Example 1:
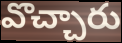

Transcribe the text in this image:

వొచ్చారు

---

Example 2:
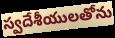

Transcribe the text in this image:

స్వదేశీయులతోను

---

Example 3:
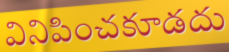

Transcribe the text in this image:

వినిపించకూడదు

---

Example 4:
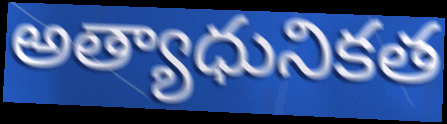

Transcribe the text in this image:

అత్యాధునికత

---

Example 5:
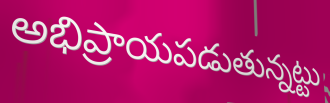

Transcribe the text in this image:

అభిప్రాయపడుతున్నట్టు